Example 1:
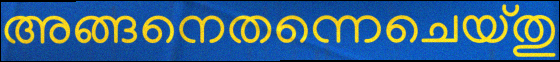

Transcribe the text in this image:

അങ്ങനെതന്നെചെയ്തു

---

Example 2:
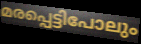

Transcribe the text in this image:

മരപ്പെട്ടിപോലും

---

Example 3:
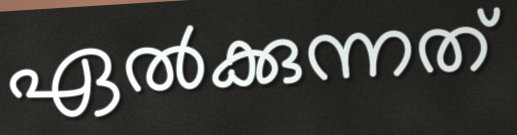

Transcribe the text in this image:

ഏൽക്കുന്നത്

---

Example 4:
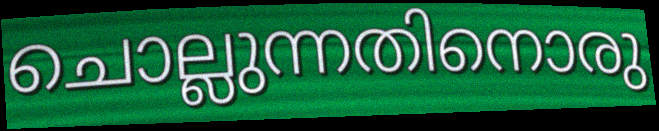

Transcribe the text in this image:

ചൊല്ലുന്നതിനൊരു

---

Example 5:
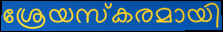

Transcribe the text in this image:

ശ്രേയസ്കരമായി